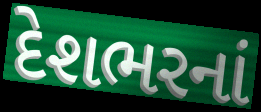
દેશભરનાં